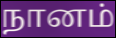
நானம்